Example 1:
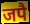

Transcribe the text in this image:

जपै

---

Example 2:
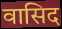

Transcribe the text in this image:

वासिद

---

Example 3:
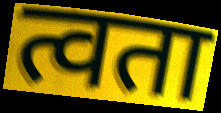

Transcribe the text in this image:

त्वता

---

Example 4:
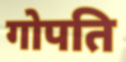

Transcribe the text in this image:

गोपति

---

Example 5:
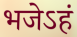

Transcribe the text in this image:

भजेऽहं